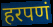
हरपणं